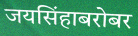
जयसिंहाबरोबर